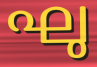
ഘു